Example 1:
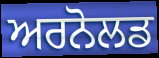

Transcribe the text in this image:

ਅਰਨੋਲਡ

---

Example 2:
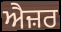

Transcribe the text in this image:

ਐਜ਼ਰ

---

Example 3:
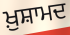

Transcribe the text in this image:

ਖ਼ੁਸ਼ਾਮਦ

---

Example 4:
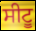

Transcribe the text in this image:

ਸੀਟੂ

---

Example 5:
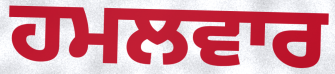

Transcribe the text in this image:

ਹਮਲਵਾਰ